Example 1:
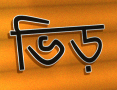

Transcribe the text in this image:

ভিড়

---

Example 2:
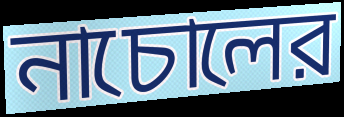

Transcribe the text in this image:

নাচোলের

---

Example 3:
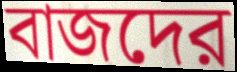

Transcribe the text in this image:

বাজদের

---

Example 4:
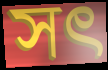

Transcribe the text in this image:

সৎ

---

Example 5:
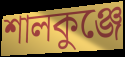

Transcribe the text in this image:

শালকুঞ্জে